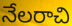
నేలరాచి